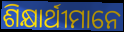
ଶିକ୍ଷାର୍ଥୀମାନେ